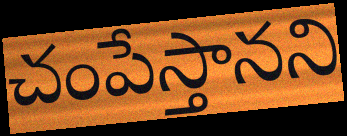
చంపేస్తానని